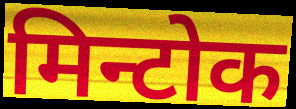
मिन्टोक